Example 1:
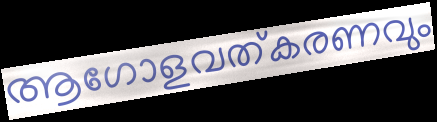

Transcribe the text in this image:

ആഗോളവത്കരണവും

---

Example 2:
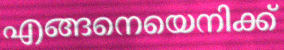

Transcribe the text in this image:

എങ്ങനെയെനിക്ക്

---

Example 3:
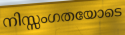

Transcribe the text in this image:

നിസ്സംഗതയോടെ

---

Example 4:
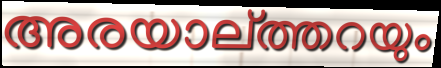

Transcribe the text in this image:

അരയാല്ത്തറയും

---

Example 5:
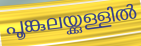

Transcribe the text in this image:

പൂങ്കുലയ്ക്കുള്ളിൽ